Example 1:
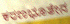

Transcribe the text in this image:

ಕರಣಭೂತೇನ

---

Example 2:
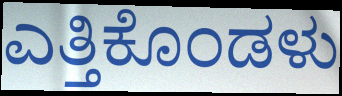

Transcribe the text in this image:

ಎತ್ತಿಕೊಂಡಳು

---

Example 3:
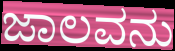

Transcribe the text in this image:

ಜಾಲವನು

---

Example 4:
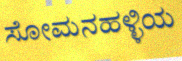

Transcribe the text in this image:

ಸೋಮನಹಳ್ಳಿಯ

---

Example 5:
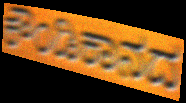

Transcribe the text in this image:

ಕೌಂಡಿಕಾನದ